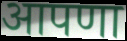
आपणा